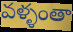
వళ్ళంతా